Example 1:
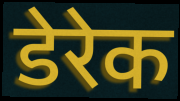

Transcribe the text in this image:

डेरेक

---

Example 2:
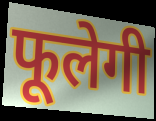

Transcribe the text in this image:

फूलेगी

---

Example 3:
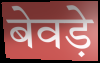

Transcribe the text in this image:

बेवड़े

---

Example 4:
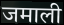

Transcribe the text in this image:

जमाली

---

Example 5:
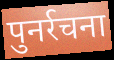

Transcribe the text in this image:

पुनर्रचना